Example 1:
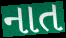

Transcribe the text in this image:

નાત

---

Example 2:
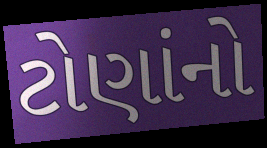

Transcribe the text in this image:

ટોણાંનો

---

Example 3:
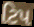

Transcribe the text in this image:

ટિપ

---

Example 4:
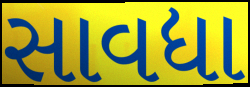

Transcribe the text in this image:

સાવદ્યા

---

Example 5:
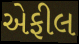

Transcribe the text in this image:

એફીલ